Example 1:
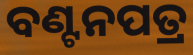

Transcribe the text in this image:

ବଣ୍ଟନପତ୍ର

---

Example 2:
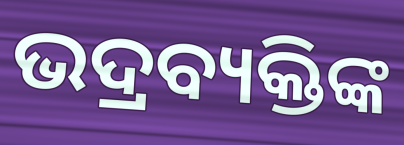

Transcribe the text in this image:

ଭଦ୍ରବ୍ୟକ୍ତିଙ୍କ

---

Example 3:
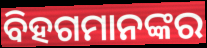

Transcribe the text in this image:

ବିହଗମାନଙ୍କର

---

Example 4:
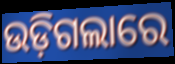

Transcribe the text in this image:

ଉଡ଼ିଗଲାରେ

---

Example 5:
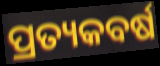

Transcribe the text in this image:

ପ୍ରତ୍ୟକବର୍ଷ